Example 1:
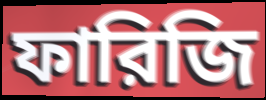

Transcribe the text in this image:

ফারিজি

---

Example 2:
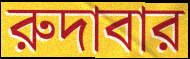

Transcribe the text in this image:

রুদাবার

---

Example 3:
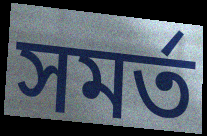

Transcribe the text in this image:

সমর্ত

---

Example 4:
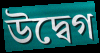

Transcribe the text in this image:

উদ্বেগ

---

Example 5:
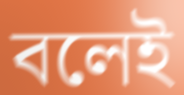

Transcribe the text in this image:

বলেই